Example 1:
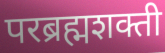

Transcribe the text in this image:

परब्रह्मशक्ती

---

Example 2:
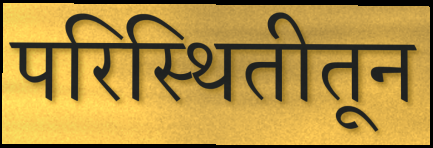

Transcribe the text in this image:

परिस्थितीतून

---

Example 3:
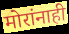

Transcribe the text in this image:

मोरांनाही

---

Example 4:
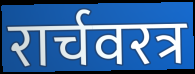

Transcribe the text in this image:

रार्चवरत्र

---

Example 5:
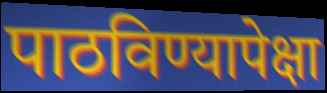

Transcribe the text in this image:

पाठविण्यापेक्षा